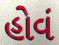
હોવં